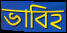
ভাবিহ